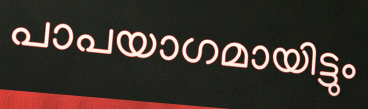
പാപയാഗമായിട്ടും